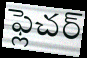
ఫ్లెచర్